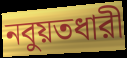
নবুয়তধারী